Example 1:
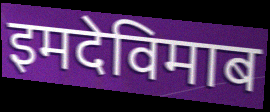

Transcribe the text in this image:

इमदेविमाब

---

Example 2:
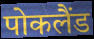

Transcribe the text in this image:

पोकलैंड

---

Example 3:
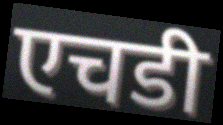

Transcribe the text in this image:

एचडी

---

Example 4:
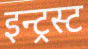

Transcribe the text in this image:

इन्ट्रस्ट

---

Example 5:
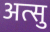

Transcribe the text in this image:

अत्सु